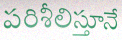
పరిశీలిస్తూనే